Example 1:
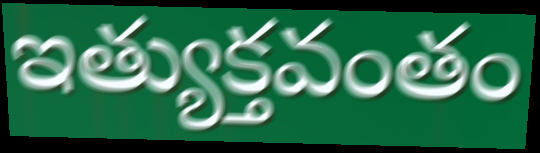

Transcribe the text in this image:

ఇత్యుక్తవంతం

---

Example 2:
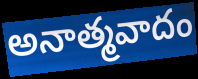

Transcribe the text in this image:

అనాత్మవాదం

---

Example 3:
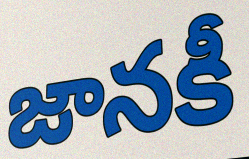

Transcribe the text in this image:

జానకీ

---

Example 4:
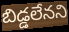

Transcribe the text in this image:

బిడ్డలేనని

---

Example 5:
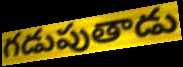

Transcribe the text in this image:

గడుపుతాడు